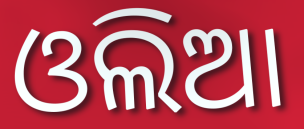
ଓଲିଆ